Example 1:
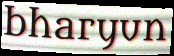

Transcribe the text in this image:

bharyun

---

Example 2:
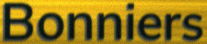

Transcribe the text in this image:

Bonniers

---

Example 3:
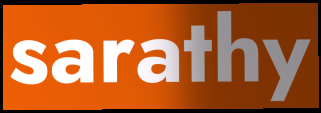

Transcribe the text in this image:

sarathy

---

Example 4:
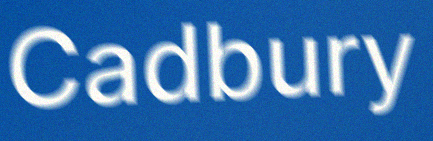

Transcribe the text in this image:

Cadbury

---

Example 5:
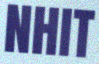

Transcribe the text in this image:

NHIT